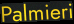
Palmieri